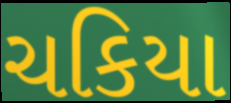
ચકિયા